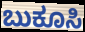
ಬುಕೂಸಿ